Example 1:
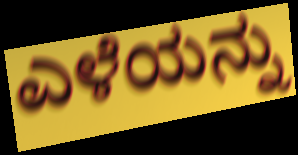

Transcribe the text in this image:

ಎಳೆಯನ್ನು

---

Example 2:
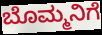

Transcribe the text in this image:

ಬೊಮ್ಮನಿಗೆ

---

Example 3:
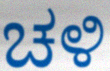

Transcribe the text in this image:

ಚಳಿ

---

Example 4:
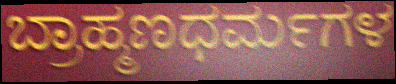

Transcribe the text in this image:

ಬ್ರಾಹ್ಮಣಧರ್ಮಗಳ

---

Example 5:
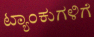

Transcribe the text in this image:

ಟ್ಯಾಂಕುಗಳಿಗೆ